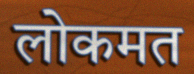
लोकमत